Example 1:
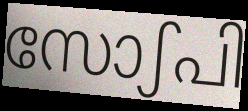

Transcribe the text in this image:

സോഽപി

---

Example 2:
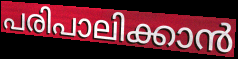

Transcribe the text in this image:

പരിപാലിക്കാൻ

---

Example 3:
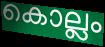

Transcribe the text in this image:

കൊല്ലം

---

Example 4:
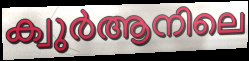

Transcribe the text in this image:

ക്വുർആനിലെ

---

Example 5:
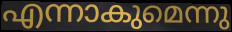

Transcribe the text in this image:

എന്നാകുമെന്നു